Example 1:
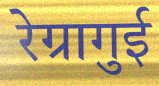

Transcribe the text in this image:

रेग्रागुई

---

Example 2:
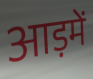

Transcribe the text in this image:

आड़में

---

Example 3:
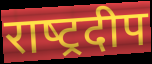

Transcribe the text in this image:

राष्ट्रदीप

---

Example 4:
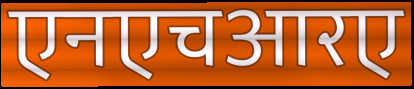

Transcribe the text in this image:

एनएचआरए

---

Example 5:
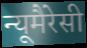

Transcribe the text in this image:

न्यूमैरेसी